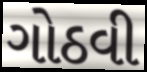
ગોઠવી